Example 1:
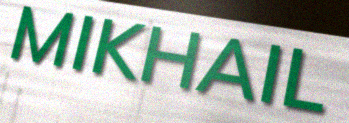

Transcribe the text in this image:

MIKHAIL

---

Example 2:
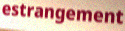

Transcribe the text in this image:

estrangement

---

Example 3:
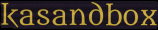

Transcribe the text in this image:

kasandbox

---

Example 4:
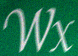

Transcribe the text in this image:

Wx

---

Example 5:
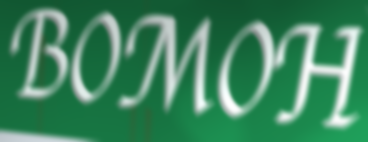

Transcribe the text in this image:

BOMOH